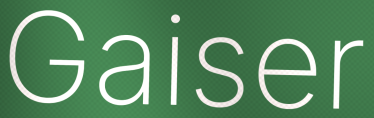
Gaiser